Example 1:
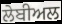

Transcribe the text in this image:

ਲੇਬੀਅਲ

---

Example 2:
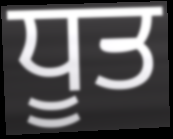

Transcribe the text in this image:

ਧੂਤ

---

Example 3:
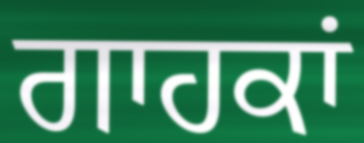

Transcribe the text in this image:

ਗਾਹਕਾਂ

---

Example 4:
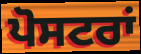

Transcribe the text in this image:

ਪੋਸਟਰਾਂ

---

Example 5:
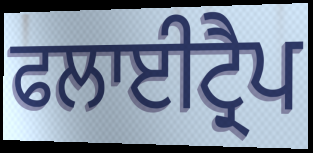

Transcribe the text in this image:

ਫਲਾਈਟ੍ਰੈਪ